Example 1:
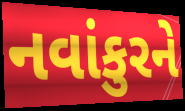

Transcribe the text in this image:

નવાંકુરને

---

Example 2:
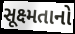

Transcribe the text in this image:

સૂક્ષ્મતાનો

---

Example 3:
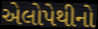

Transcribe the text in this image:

એલોપેથીનો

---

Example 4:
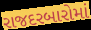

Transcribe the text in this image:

રાજદરબારોમાં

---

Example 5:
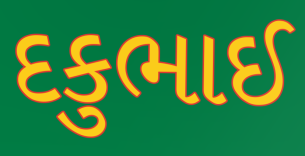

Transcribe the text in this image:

દકુભાઈ